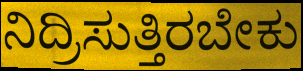
ನಿದ್ರಿಸುತ್ತಿರಬೇಕು